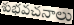
శుభవచనాలు